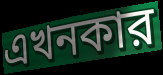
এখনকার